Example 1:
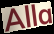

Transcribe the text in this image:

Alla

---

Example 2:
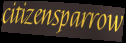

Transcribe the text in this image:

citizensparrow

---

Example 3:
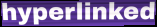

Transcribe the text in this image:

hyperlinked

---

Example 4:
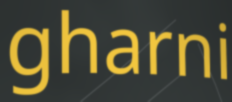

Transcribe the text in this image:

gharni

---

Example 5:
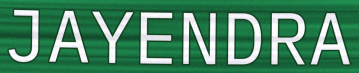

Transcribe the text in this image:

JAYENDRA